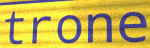
trone